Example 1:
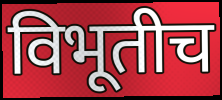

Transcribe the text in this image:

विभूतीच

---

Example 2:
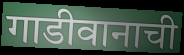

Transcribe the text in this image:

गाडीवानाची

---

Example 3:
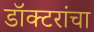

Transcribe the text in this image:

डॉक्टरांचा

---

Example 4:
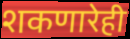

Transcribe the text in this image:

शकणारेही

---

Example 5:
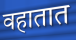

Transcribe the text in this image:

वहातात